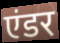
एंडर